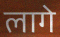
लागे